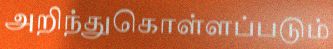
அறிந்துகொள்ளப்படும்